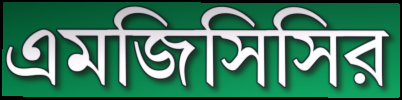
এমজিসিসির